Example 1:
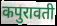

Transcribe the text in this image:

कपुरावती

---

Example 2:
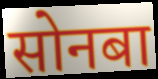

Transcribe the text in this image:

सोनबा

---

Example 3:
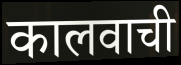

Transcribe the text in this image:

कालवाची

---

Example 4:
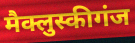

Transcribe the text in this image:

मैक्लुस्कीगंज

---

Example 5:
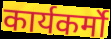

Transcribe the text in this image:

कार्यकर्मो